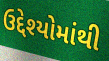
ઉદ્દેશ્યોમાંથી